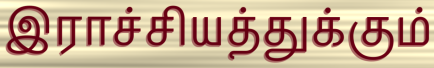
இராச்சியத்துக்கும்